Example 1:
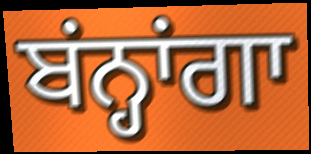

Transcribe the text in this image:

ਬਂਨ੍ਹਾਂਗਾ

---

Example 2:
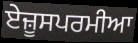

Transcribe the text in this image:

ਏਜ਼ੂਸਪਰਮੀਆ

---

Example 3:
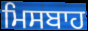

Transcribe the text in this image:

ਮਿਸਬਾਹ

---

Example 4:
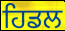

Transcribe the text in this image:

ਹਿਡਲ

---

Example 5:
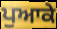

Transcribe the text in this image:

ਪੁਆਕੇ